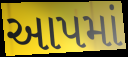
આપમાં